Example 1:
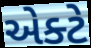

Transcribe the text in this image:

એક્ટે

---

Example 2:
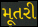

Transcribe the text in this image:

મૂતરી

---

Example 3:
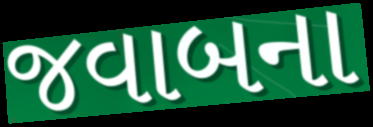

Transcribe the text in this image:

જવાબના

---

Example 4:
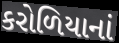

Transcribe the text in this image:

કરોળિયાનાં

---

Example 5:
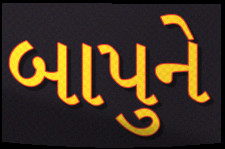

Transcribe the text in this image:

બાપુને